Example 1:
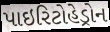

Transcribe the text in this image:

પાઇરિટોહેડ્રોન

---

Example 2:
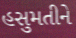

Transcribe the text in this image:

હસુમતીને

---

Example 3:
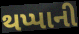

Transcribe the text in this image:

થપ્પાની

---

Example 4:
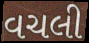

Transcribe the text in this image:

વચલી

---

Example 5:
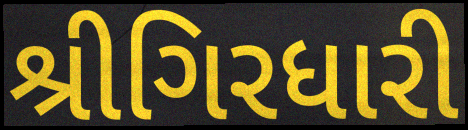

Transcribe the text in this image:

શ્રીગિરધારી